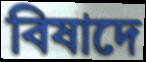
বিষাদে